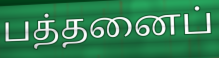
பத்தனைப்